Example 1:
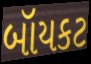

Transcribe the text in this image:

બૉયકટ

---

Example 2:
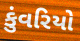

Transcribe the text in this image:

કુંવરિયો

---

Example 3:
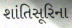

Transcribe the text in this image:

શાંતિસૂરિના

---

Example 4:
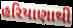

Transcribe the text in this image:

હરિયાણાથી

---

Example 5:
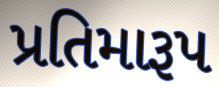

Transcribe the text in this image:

પ્રતિમારૂપ